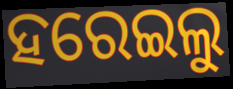
ହରେଇଲୁ